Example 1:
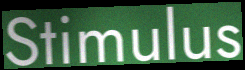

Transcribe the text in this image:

Stimulus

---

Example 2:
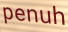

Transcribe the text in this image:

penuh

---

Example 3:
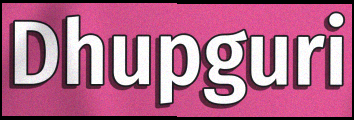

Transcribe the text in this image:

Dhupguri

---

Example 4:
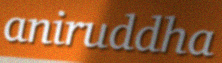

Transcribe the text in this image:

aniruddha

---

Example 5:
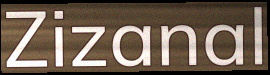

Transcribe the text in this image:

Zizanal